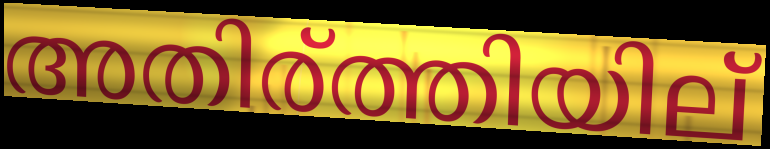
അതിര്ത്തിയില്